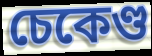
চেকেণ্ড